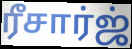
ரீசார்ஜ்